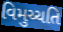
વિમુચ્ચતિ